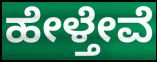
ಹೇಳ್ತೇವೆ